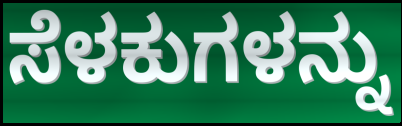
ಸೆಳಕುಗಳನ್ನು